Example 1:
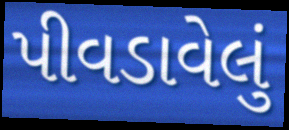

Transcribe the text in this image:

પીવડાવેલું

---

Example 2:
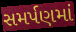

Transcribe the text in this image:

સમર્પણમાં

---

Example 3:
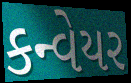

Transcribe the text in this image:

કન્વેયર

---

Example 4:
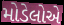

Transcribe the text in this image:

મોડેલોએ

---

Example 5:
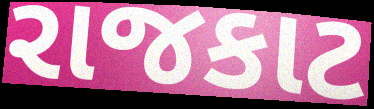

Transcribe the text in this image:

રાજકાટ